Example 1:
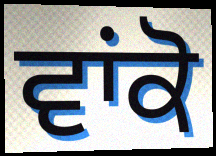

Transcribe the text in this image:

ਵਾਂਕੋ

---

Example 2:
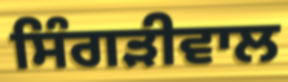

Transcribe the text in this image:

ਸਿੰਗੜੀਵਾਲ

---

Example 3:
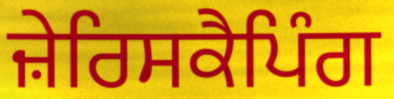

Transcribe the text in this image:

ਜ਼ੇਰਿਸਕੈਪਿੰਗ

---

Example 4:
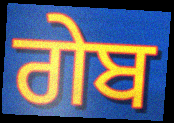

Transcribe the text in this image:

ਗੇਬ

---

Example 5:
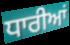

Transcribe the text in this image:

ਧਾਰੀਆਂ